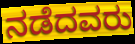
ನಡೆದವರು